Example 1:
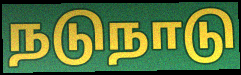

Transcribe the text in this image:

நடுநாடு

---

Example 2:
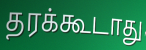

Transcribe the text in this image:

தரக்கூடாது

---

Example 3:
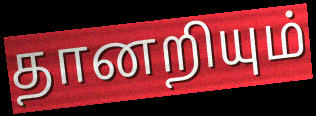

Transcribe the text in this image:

தானறியும்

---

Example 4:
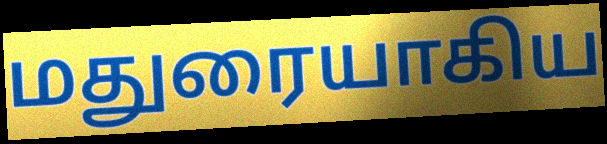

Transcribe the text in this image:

மதுரையாகிய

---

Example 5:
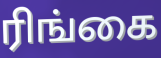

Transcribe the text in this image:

ரிங்கை